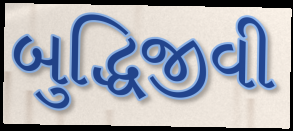
બુદ્ધિજીવી